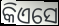
କିଏସେ